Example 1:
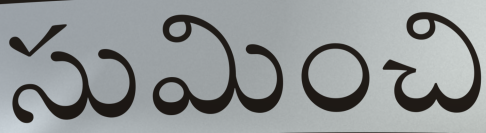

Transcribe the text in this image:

సుమించి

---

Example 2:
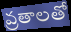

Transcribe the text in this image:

వ్రతాలతో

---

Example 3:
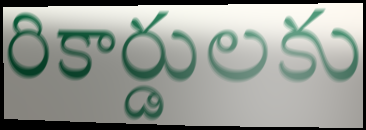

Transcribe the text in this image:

రికార్డులకు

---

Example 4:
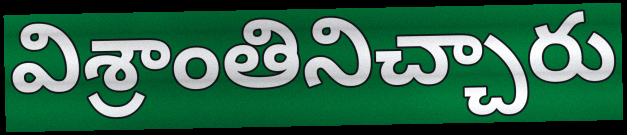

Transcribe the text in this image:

విశ్రాంతినిచ్చారు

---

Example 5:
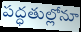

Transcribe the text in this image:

పద్ధతుల్లోనూ